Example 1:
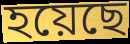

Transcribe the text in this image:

হয়েছে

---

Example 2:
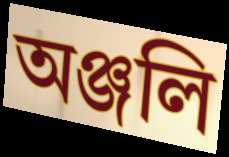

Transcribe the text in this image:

অঞ্জলি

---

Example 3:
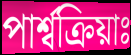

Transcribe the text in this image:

পাৰ্শ্বক্ৰিয়াঃ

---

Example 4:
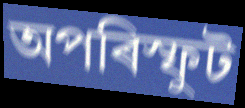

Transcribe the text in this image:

অপৰিস্ফুট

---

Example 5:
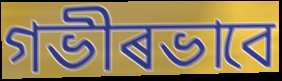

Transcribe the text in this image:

গভীৰভাবে